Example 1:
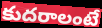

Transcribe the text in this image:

కుదరాలంటే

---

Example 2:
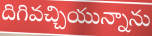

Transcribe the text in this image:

దిగివచ్చియున్నాను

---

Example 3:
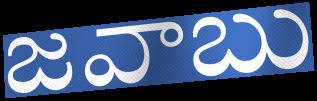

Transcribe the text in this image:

జవాబు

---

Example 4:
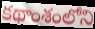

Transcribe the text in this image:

కథాంశంలోని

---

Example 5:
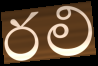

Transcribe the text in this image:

రలి